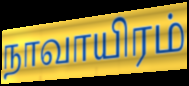
நாவாயிரம்